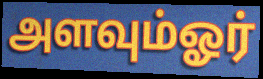
அளவும்ஓர்